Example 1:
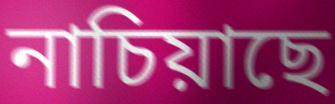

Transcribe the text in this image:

নাচিয়াছে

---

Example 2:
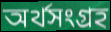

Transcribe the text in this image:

অর্থসংগ্রহ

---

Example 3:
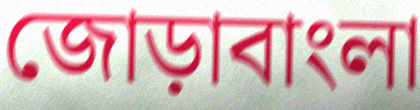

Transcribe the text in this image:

জোড়াবাংলা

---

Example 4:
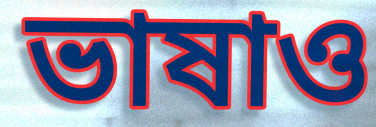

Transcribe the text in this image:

ভাষাও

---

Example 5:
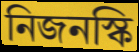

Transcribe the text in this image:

নিজনস্কি